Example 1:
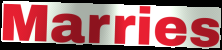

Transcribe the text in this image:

Marries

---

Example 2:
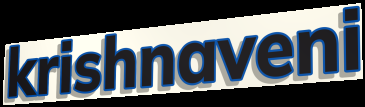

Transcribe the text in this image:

krishnaveni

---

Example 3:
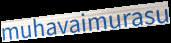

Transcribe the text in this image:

muhavaimurasu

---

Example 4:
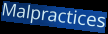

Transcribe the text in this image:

Malpractices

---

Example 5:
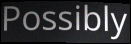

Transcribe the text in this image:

Possibly